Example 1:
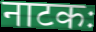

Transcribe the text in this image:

नाटकः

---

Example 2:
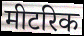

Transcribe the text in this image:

मीटरिक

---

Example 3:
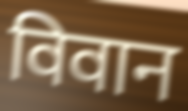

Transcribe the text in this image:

विवान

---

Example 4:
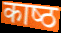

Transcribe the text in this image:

काष्‍ठ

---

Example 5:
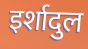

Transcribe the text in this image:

इर्शादुल